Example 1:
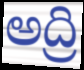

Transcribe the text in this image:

అద్రి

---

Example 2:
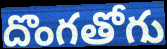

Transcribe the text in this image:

దొంగతోగు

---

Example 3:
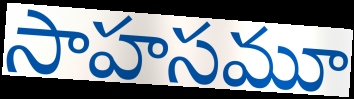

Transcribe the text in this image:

సాహసమూ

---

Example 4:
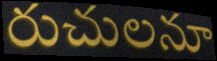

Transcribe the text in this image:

రుచులనూ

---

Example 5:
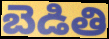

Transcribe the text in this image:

బెడితి